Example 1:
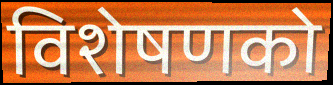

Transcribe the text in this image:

विशेषणको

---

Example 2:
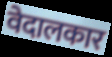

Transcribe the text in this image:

वेदालकार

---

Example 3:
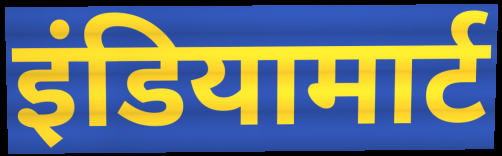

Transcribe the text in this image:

इंडियामार्ट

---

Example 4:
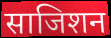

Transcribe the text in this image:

साजिशन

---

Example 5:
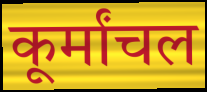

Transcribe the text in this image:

कूर्मांचल